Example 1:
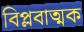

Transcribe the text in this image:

বিপ্লবাত্মক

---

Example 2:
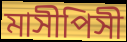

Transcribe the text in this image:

মাসীপিসী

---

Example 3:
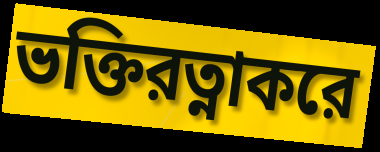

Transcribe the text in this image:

ভক্তিরত্নাকরে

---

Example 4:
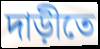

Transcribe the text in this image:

দাড়ীতে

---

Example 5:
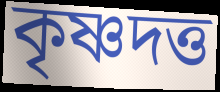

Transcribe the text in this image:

কৃষ্ণদত্ত